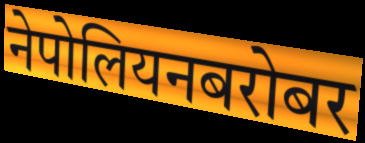
नेपोलियनबरोबर